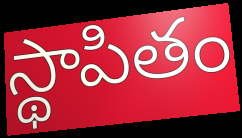
స్థాపితం